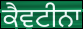
ਕੈਵਟੀਨਾ